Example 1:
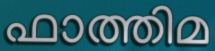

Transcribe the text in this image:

ഫാത്തിമ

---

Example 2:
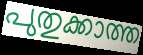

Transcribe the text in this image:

പുതുക്കാത്ത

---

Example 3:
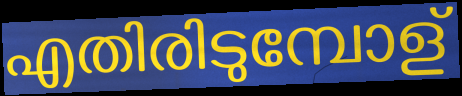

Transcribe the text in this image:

എതിരിടുമ്പോള്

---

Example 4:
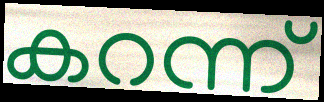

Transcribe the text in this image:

കറന്ന്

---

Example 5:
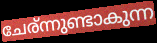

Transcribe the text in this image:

ചേര്ന്നുണ്ടാകുന്ന